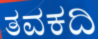
ತವಕದಿ